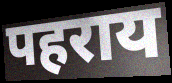
पहराय